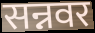
सन्नवर